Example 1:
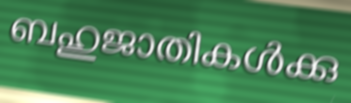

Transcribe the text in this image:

ബഹുജാതികൾക്കു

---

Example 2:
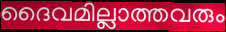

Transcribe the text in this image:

ദൈവമില്ലാത്തവരും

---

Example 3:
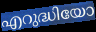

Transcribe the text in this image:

എറുദ്ധിയോ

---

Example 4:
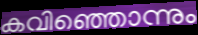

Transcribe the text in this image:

കവിഞ്ഞൊന്നും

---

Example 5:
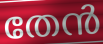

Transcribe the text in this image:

തേൻ